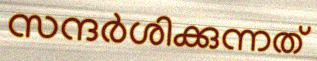
സന്ദർശിക്കുന്നത്